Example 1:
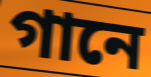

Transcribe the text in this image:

গানে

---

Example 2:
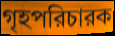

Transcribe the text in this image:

গৃহপরিচারক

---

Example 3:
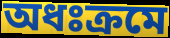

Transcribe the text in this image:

অধঃক্রমে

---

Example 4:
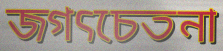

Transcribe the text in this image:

জগৎচেতনা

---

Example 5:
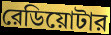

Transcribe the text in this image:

রেডিয়োটার